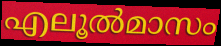
എലൂൽമാസം